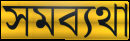
সমব্যথা